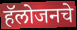
हॅलोजनचे